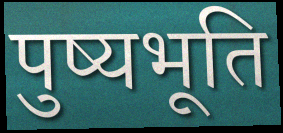
पुष्यभूति